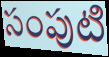
సంపుటి